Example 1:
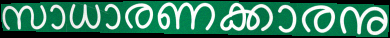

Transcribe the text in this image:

സാധാരണക്കാരനു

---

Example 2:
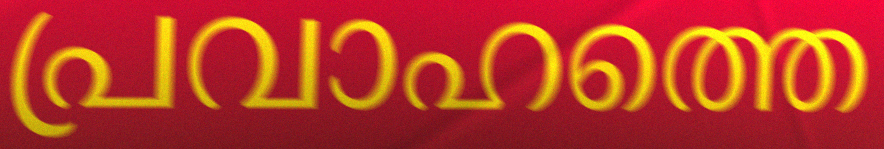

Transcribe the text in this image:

പ്രവാഹത്തെ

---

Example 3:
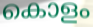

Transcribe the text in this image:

കൊളം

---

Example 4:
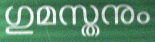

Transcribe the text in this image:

ഗുമസ്തനും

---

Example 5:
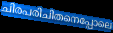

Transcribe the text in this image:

ചിരപരിചിതനെപ്പോലെ